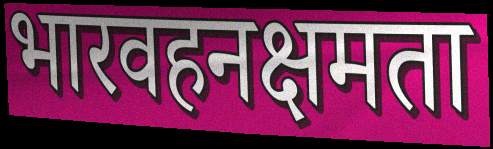
भारवहनक्षमता